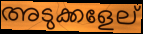
അടുക്കളേല്